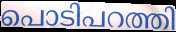
പൊടിപറത്തി